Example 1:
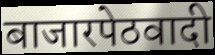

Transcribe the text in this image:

बाजारपेठवादी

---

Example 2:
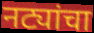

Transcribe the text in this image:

नट्यांचा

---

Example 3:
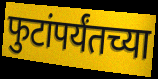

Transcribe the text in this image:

फुटांपर्यंतच्या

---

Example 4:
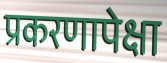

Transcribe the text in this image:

प्रकरणापेक्षा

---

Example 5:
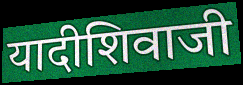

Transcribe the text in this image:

यादीशिवाजी